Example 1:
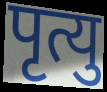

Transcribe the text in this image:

पृत्यु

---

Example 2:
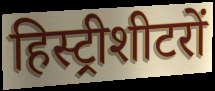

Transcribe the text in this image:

हिस्ट्रीशीटरों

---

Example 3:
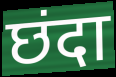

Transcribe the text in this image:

छंदा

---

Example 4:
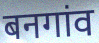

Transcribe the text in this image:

बनगांव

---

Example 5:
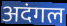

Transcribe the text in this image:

अदंगल